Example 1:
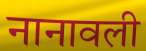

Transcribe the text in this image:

नानावली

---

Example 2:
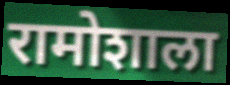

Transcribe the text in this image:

रामोशाला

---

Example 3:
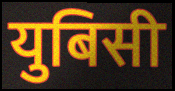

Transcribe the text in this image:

युबिसी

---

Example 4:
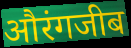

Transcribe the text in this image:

औरंगजीब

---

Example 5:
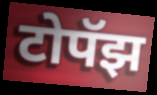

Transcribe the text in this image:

टोपॅझ